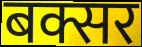
बक्सर